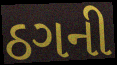
ઠગની